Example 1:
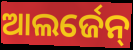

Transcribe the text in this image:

ଆଲର୍ଜେନ୍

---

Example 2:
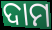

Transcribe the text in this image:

ଦାମ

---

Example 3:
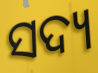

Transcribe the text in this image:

ସଦ୍ୟ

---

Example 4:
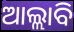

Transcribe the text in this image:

ଆଲ୍ଲାବି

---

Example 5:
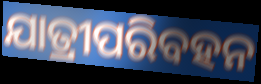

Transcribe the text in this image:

ଯାତ୍ରୀପରିବହନ